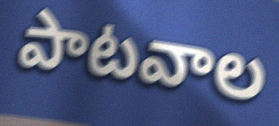
పాటవాల